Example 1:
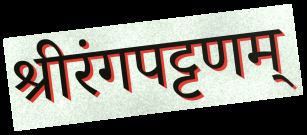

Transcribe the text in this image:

श्रीरंगपट्टणम्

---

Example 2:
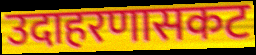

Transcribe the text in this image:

उदाहरणासकट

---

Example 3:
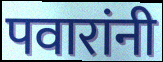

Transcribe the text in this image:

पवारांनी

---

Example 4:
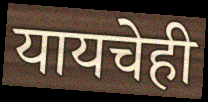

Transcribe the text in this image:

यायचेही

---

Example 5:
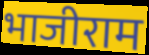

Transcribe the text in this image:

भाजीराम